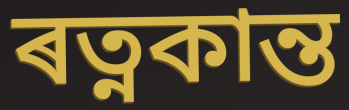
ৰত্নকান্ত